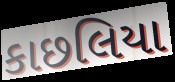
કાછલિયા